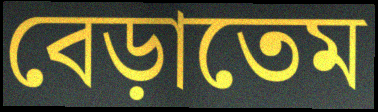
বেড়াতেম